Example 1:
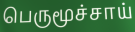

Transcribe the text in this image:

பெருமூச்சாய்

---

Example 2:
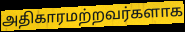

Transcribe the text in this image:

அதிகாரமற்றவர்களாக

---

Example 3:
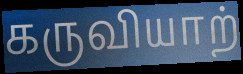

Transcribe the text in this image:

கருவியாற்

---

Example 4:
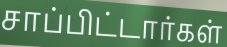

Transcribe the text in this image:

சாப்பிட்டார்கள்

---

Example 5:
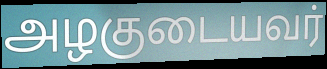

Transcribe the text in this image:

அழகுடையவர்